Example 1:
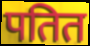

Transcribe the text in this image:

पतित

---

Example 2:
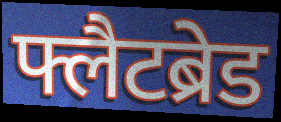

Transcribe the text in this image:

फ्लैटब्रेड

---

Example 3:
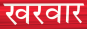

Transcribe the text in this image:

खरवार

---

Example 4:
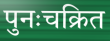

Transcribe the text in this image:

पुनःचक्रित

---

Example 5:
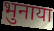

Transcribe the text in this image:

भुनाया